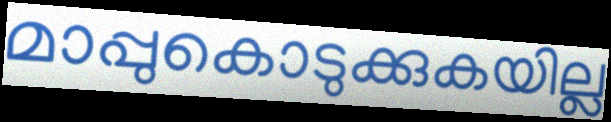
മാപ്പുകൊടുക്കുകയില്ല